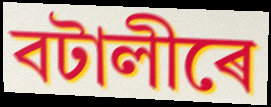
বটালীৰে